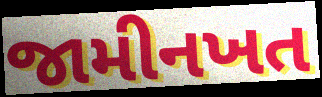
જામીનખત